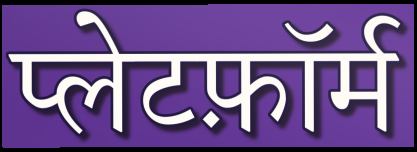
प्लेटफ़ॉर्म